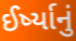
ઈર્ષ્યાનું